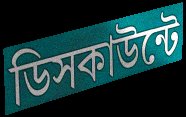
ডিসকাউন্টে